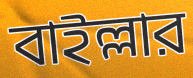
বাইল্লার